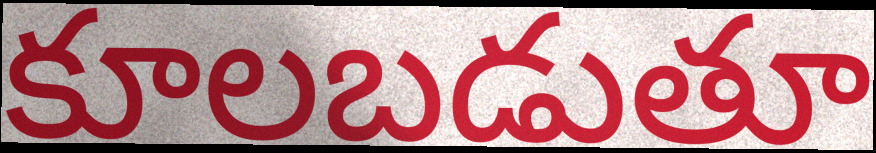
కూలబడుతూ